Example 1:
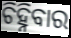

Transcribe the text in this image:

ଚିହ୍ନିବାର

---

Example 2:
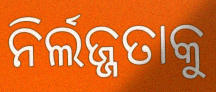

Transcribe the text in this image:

ନିର୍ଲଜ୍ଜତାକୁ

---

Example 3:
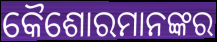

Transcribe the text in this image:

କୈଶୋରମାନଙ୍କର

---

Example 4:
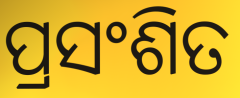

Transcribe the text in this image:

ପ୍ରସଂଶିତ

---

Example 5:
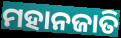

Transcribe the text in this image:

ମହାନଜାତି